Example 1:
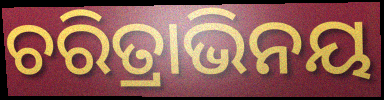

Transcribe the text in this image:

ଚରିତ୍ରାଭିନୟ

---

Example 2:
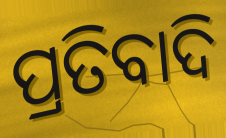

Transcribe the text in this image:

ପ୍ରତିବାଦି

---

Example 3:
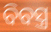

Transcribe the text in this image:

ବିବସ୍ତ୍ର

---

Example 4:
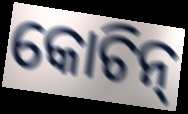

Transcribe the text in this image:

କୋଚିନ୍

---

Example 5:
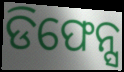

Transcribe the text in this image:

ଡିଫେନ୍ସ